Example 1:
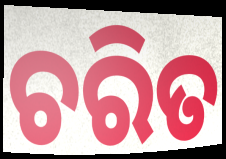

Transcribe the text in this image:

ଚରିତ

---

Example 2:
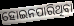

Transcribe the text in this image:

ହୋଇନପାରିଥିବା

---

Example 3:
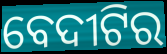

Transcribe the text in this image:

ବେଦୀଟିର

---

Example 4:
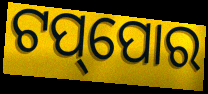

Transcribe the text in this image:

ଟପ୍‌ପୋର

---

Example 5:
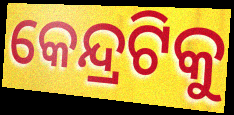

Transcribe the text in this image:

କେନ୍ଦ୍ରଟିକୁ